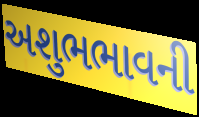
અશુભભાવની